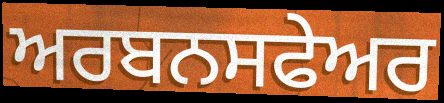
ਅਰਬਨਸਫੇਅਰ